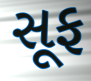
સૂફ